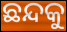
ଛନ୍ଦକୁ